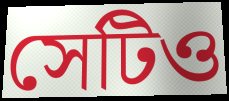
সেটিও